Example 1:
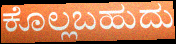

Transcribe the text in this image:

ಕೊಲ್ಲಬಹುದು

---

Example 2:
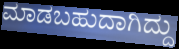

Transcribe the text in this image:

ಮಾಡಬಹುದಾಗಿದ್ದು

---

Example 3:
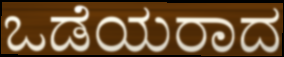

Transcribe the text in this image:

ಒಡೆಯರಾದ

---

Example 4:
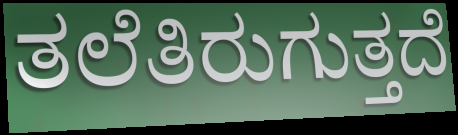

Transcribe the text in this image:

ತಲೆತಿರುಗುತ್ತದೆ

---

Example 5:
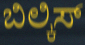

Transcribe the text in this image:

ಬಿಲ್ಕಿಸ್